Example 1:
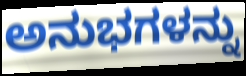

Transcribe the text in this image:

ಅನುಭಗಳನ್ನು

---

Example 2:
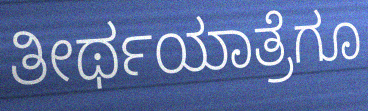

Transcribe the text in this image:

ತೀರ್ಥಯಾತ್ರೆಗೂ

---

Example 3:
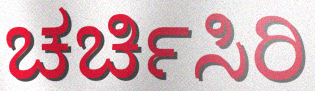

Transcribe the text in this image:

ಚರ್ಚಿಸಿರಿ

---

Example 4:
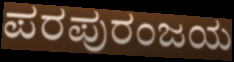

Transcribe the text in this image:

ಪರಪುರಂಜಯ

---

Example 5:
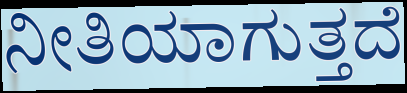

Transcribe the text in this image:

ನೀತಿಯಾಗುತ್ತದೆ